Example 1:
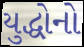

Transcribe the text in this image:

યુદ્ધોનો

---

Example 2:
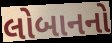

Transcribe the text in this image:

લોબાનનો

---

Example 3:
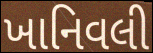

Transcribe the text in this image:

ખાનિવલી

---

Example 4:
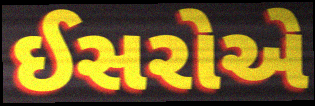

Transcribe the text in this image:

ઈસરોએ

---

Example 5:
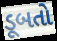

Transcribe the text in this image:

ડૂબતો